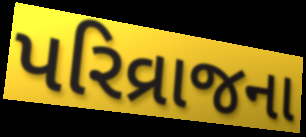
પરિવ્રાજના